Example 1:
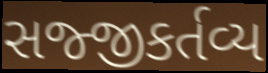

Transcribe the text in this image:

સજ્જીકર્તવ્ય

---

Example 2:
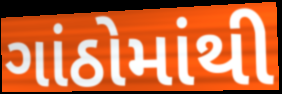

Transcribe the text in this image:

ગાંઠોમાંથી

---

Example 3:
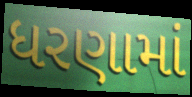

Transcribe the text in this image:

ધરણામાં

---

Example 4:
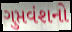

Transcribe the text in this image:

ગુપ્તવંશનો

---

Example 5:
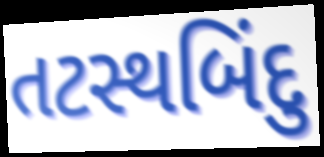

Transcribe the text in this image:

તટસ્થબિંદુ